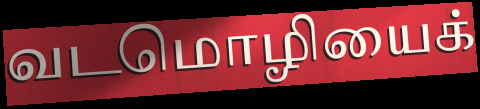
வடமொழியைக்